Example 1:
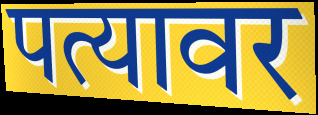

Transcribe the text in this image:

पत्यावर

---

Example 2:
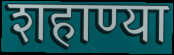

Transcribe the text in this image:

शहाण्या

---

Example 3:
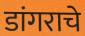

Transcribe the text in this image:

डांगराचे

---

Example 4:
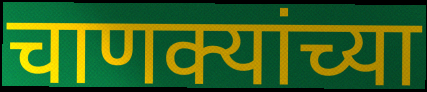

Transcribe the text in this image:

चाणक्यांच्या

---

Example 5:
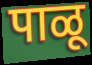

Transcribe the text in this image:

पाळू